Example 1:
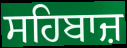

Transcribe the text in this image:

ਸਹਿਬਾਜ਼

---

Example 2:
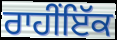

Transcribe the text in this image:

ਰਾਹੀਂਇੱਕ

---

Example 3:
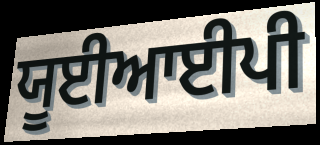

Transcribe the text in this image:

ਯੂਈਆਈਪੀ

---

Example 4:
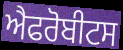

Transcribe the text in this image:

ਐਫਰੋਬੀਟਸ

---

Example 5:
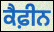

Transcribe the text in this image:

ਕੈਫ਼ੀਨ